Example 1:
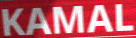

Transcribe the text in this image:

KAMAL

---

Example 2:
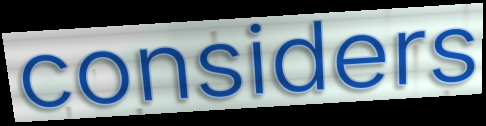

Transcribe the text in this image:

considers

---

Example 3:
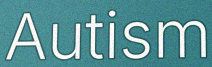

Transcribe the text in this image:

Autism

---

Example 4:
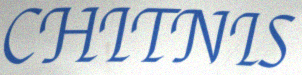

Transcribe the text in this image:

CHITNIS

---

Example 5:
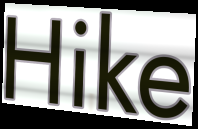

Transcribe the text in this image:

Hike